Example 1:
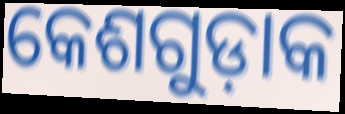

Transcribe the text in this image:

କେଶଗୁଡ଼ାକ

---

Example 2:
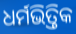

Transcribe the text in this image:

ଧର୍ମଭିତ୍ତିକ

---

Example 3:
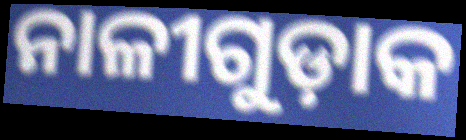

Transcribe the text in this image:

ନାଳୀଗୁଡ଼ାକ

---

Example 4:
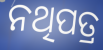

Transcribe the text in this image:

ନଥିପତ୍ର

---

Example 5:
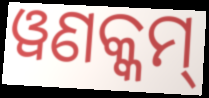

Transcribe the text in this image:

ୱଣକ୍କମ୍